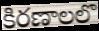
కిరణాలలొ